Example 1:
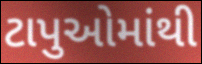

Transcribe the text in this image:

ટાપુઓમાંથી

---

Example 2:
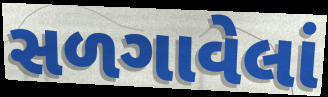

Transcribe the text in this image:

સળગાવેલાં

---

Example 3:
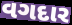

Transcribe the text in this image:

વગદાર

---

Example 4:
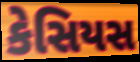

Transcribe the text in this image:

કેસિયસ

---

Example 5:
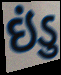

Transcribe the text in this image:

ઇંડુ